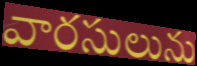
వారసులును